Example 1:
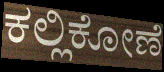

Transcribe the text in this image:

ಕಲ್ಲಿಕೋಣೆ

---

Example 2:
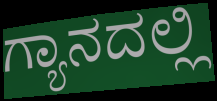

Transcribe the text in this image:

ಗ್ಯಾನದಲ್ಲಿ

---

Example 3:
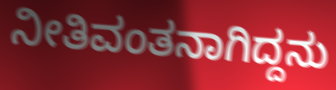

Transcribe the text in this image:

ನೀತಿವಂತನಾಗಿದ್ದನು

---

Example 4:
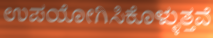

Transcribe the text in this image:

ಉಪಯೋಗಿಸಿಕೊಳ್ಳುತ್ತವೆ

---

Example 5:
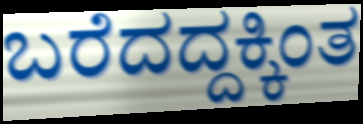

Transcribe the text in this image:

ಬರೆದದ್ದಕ್ಕಿಂತ